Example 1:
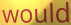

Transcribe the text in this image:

would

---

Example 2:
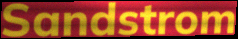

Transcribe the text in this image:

Sandstrom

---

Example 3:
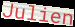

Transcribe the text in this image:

Julien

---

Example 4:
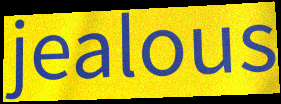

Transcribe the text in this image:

jealous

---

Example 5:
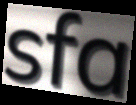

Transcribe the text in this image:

sfa